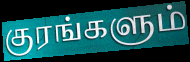
குரங்களும்